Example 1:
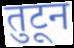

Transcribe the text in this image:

तुटून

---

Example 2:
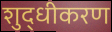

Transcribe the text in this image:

शुद्धीकरण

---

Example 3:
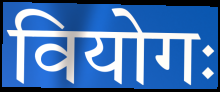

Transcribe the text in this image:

वियोगः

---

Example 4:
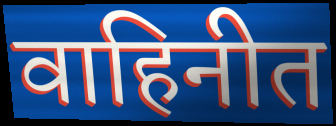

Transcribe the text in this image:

वाहिनीत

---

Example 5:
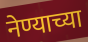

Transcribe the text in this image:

नेण्याच्या